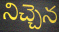
నిచ్చెన